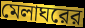
মেলাঘরের